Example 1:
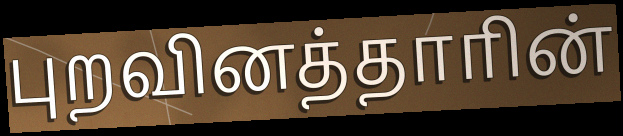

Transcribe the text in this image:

புறவினத்தாரின்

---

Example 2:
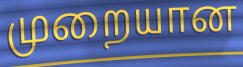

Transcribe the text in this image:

முறையான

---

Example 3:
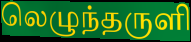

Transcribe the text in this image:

லெழுந்தருளி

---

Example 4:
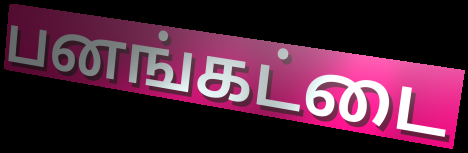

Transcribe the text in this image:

பனங்கட்டை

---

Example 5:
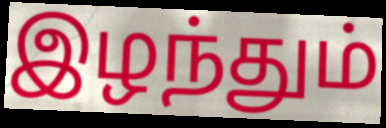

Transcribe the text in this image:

இழந்தும்